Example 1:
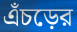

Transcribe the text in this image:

এঁচড়ের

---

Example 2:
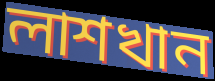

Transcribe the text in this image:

লাশখান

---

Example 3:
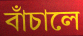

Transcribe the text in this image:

বাঁচালে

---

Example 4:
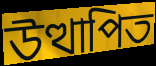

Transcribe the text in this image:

উত্থাপিত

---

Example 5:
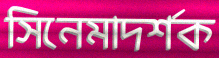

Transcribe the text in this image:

সিনেমাদর্শক